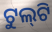
ଟୁଲ୍‌ଟି